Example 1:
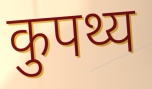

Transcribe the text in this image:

कुपथ्य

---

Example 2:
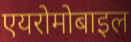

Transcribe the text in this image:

एयरोमोबाइल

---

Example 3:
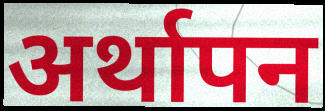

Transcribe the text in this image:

अर्थापन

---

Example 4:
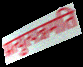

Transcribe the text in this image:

प्रत्युत्पन्नमति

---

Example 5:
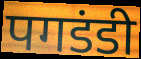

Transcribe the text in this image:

पगडंडी